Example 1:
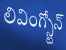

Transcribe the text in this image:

లివింగ్స్టోన్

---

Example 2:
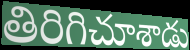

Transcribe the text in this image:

తిరిగిచూశాడు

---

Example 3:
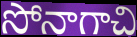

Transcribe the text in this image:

సోనాగాచి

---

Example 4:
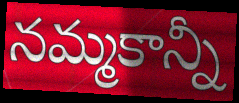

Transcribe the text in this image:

నమ్మకాన్నీ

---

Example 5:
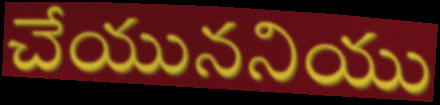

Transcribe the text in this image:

చేయుననియు